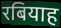
रबियाह